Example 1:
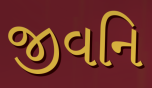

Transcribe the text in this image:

જીવનિ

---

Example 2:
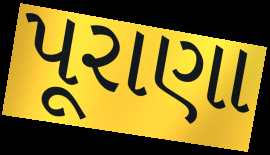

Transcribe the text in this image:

પૂરાણા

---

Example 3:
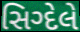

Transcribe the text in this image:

સિગ્દેલે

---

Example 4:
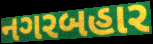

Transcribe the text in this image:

નગરબહાર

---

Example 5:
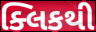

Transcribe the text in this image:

ક્લિકથી